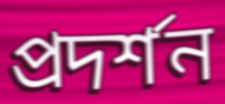
প্রদর্শন